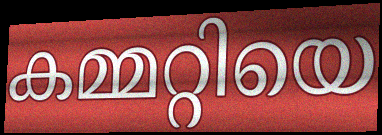
കമ്മറ്റിയെ